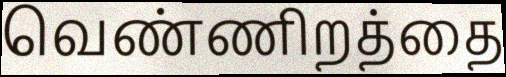
வெண்ணிறத்தை